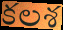
కలశ